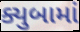
ક્યુબામાં